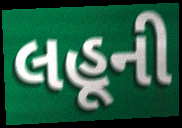
લહૂની